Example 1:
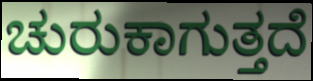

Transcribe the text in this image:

ಚುರುಕಾಗುತ್ತದೆ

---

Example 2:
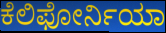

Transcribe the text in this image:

ಕೆಲಿಫೋರ್ನಿಯಾ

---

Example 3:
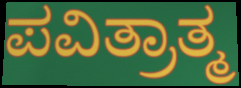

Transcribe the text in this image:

ಪವಿತ್ರಾತ್ಮ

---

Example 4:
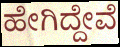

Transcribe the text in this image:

ಹೇಗಿದ್ದೇವೆ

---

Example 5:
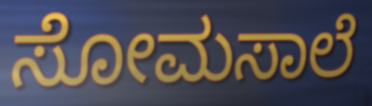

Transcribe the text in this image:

ಸೋಮಸಾಲೆ